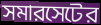
সমারসেটের